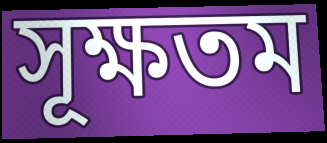
সূক্ষতম